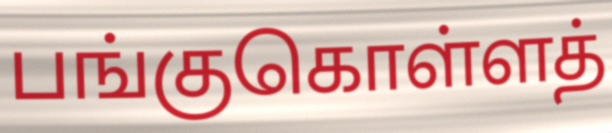
பங்குகொள்ளத்